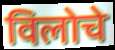
विलोचे